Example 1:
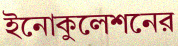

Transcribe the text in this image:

ইনোকুলেশনের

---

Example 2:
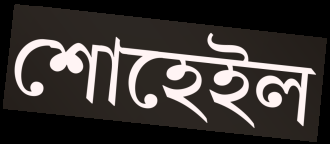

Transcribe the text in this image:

শোহেইল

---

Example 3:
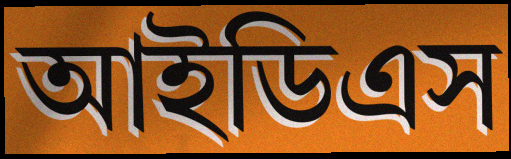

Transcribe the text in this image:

আইডিএস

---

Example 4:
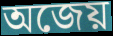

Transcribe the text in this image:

অজেয়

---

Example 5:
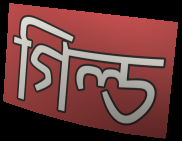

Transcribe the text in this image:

গিল্ড